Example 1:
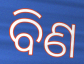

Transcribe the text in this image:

ବିଣ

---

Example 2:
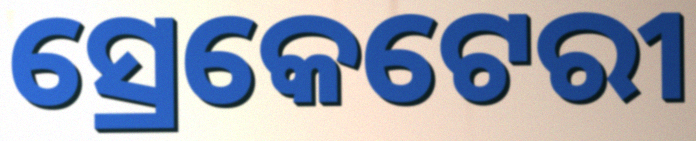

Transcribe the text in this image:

ସ୍ରେକେଟେରୀ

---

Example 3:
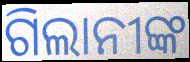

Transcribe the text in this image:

ଗିଲାନୀଙ୍କ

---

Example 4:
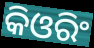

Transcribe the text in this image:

କିଓରିଂ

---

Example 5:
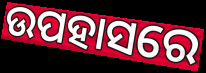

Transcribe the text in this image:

ଉପହାସରେ